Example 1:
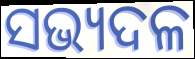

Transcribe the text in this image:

ସଭ୍ୟଦଳ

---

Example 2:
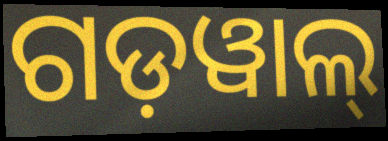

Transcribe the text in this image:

ଗଡ଼ୱାଲ୍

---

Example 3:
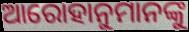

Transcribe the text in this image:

ଆରୋହାନୁମାନଙ୍କୁ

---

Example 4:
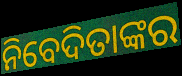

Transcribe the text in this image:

ନିବେଦିତାଙ୍କର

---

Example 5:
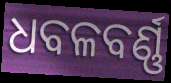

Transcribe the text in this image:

ଧବଳବର୍ଣ୍ଣ